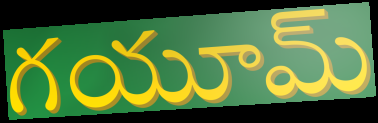
గయూమ్